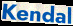
Kendal